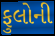
ફુલોની